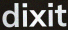
dixit